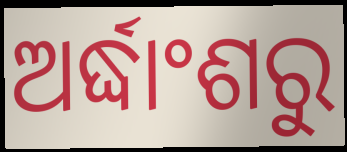
ଅର୍ଦ୍ଧାଂଶରୁ